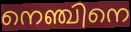
നെഞ്ചിനെ